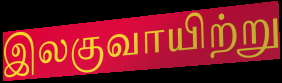
இலகுவாயிற்று